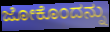
ಜೋಕೊಂದನ್ನು